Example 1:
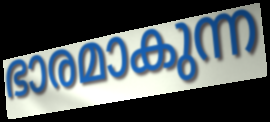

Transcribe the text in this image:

ഭാരമാകുന്ന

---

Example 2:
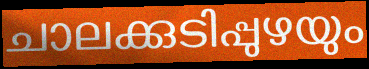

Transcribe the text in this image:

ചാലക്കുടിപ്പുഴയും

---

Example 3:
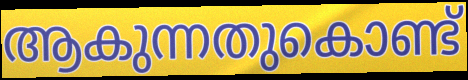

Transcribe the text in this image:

ആകുന്നതുകൊണ്ട്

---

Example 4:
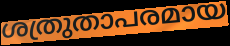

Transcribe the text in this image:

ശത്രുതാപരമായ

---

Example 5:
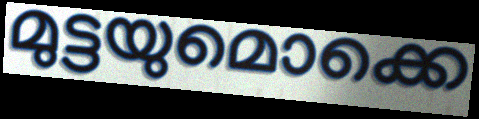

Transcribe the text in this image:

മുട്ടയുമൊക്കെ